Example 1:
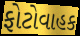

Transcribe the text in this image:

ફોટોવાહક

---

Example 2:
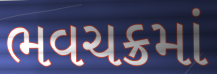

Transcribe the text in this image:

ભવચક્રમાં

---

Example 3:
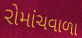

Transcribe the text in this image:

રોમાંચવાળા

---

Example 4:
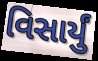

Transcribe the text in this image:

વિસાર્યું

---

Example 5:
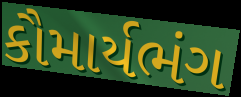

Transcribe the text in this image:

કૌમાર્યભંગ